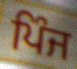
ਪਿੰਜ